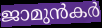
ജാമുൻകർ